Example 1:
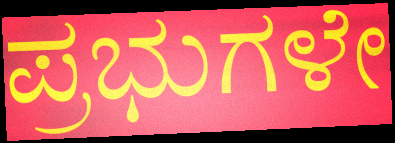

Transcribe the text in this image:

ಪ್ರಭುಗಳೇ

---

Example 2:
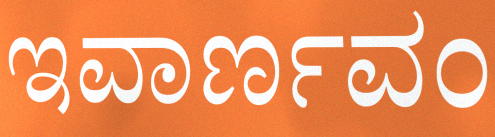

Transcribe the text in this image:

ಇವಾರ್ಣವಂ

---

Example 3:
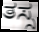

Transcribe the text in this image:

ತಸ್ಸ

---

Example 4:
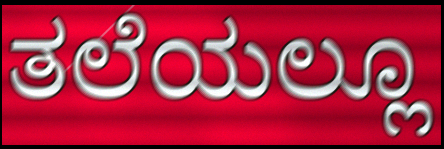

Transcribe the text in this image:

ತಲೆಯಲ್ಲೂ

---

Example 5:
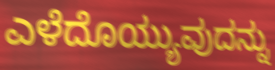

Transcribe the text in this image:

ಎಳೆದೊಯ್ಯುವುದನ್ನು